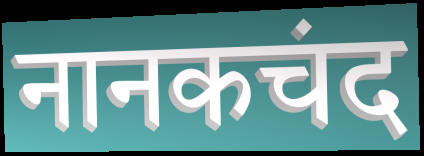
नानकचंद